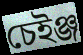
চেইঞ্জ